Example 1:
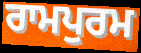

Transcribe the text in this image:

ਰਾਮਪੁਰਮ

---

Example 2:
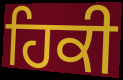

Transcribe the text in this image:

ਹਿਕੀ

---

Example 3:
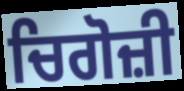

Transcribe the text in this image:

ਚਿਗੋਜ਼ੀ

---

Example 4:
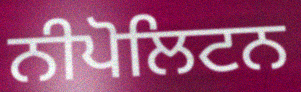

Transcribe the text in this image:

ਨੀਪੋਲਿਟਨ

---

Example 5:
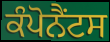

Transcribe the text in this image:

ਕੰਪੋਨੈਂਟਸ